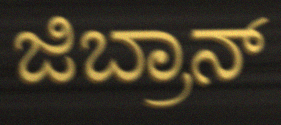
ಜಿಬ್ರಾನ್